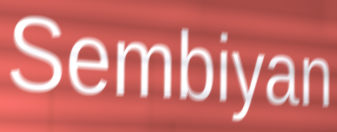
Sembiyan